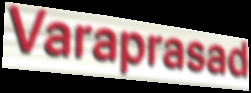
Varaprasad